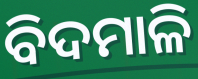
ବିଦମାଳି